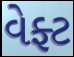
વેફ્ટ